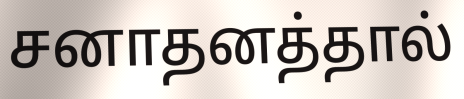
சனாதனத்தால்